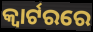
କ୍ଵାର୍ଟରରେ